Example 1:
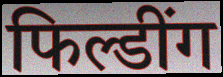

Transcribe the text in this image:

फिल्डींग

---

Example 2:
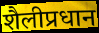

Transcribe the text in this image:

शैलीप्रधान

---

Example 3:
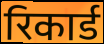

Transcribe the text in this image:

रिकार्ड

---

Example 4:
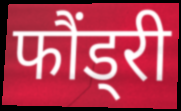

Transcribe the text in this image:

फौंड्री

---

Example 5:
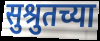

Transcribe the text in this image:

सुश्रुतच्या